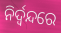
ନିର୍ଦ୍ୱନ୍ଦରେ